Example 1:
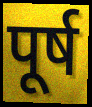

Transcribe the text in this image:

पूर्ष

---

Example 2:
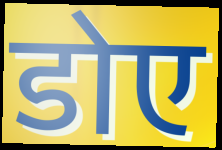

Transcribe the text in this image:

डोए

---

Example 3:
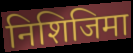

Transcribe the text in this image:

निशिजिमा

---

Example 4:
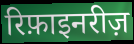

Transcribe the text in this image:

रिफ़ाइनरीज़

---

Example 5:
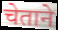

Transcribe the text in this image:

चेताने